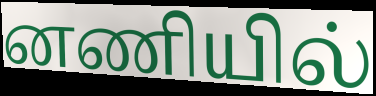
னணியில்